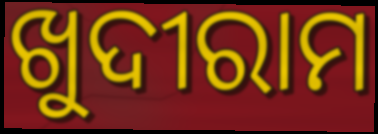
ଖୁଦୀରାମ